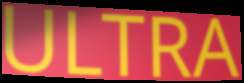
ULTRA